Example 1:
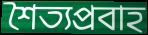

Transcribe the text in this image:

শৈত্যপ্রবাহ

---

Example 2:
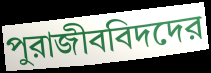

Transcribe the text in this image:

পুরাজীববিদদের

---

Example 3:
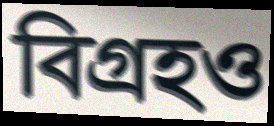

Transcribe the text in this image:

বিগ্রহও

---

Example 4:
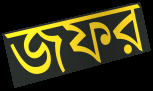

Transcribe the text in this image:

জফর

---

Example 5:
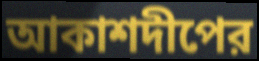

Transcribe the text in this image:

আকাশদীপের